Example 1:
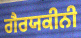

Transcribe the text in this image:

ਗੈਰਯਕੀਨੀ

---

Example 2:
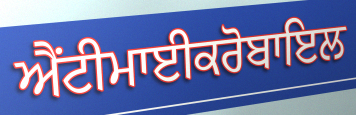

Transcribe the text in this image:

ਐਂਟੀਮਾਈਕਰੋਬਾਇਲ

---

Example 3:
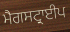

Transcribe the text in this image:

ਮੈਗਸਟ੍ਰਾਈਪ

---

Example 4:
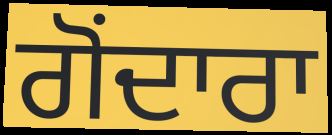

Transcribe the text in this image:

ਗੋਂਦਾਰਾ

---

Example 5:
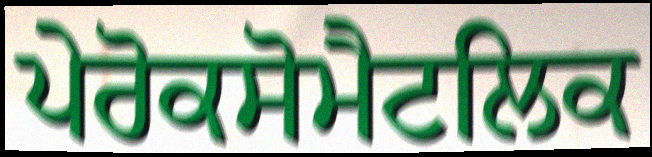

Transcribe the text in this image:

ਪੇਰੋਕਸੋਮੈਟਲਿਕ